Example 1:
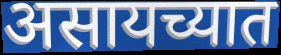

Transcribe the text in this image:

असायच्यात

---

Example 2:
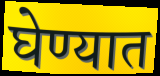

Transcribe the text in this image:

घेण्यात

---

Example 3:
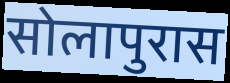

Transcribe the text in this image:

सोलापुरास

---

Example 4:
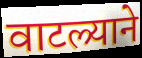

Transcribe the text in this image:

वाटल्याने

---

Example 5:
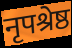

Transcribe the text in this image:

नृपश्रेष्ठ